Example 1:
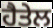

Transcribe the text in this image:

ਹੈਤੇਲ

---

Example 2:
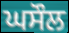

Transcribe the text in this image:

ਘਸੌਲ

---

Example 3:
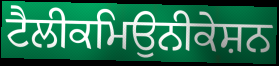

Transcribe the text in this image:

ਟੈਲੀਕਮਿਉਨੀਕੇਸ਼ਨ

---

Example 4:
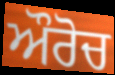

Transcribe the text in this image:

ਔਰੋਚ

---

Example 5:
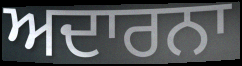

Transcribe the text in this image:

ਅਦਾਰਨਾ